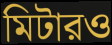
মিটারও